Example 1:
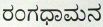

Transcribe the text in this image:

ರಂಗಧಾಮನ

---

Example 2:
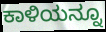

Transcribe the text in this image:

ಕಾಳಿಯನ್ನೂ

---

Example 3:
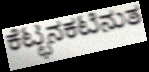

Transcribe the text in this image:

ಕೆಟ್ಟನಕಟೆನುತ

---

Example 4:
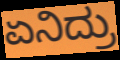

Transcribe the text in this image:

ಏನಿದ್ರು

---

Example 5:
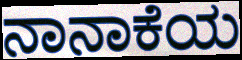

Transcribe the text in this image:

ನಾನಾಕೆಯ